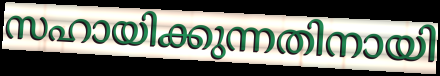
സഹായിക്കുന്നതിനായി